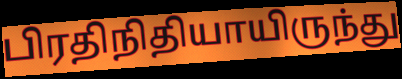
பிரதிநிதியாயிருந்து